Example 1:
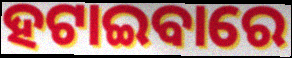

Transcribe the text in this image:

ହଟାଇବାରେ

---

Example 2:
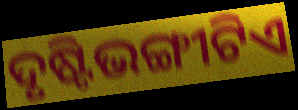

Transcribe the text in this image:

ଦୃଷ୍ଟିଭଙ୍ଗୀଟିଏ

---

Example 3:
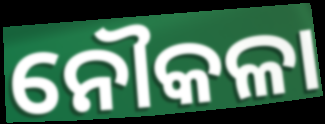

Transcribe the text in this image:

ନୌକଳା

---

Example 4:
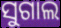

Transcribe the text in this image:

ସୁଗାଲ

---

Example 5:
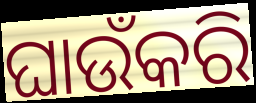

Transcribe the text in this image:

ଘାଉଁକରି